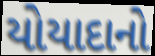
યોયાદાનો